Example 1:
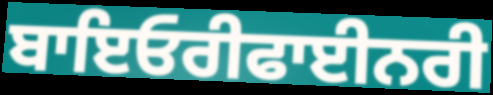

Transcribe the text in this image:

ਬਾਇਓਰੀਫਾਈਨਰੀ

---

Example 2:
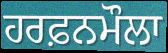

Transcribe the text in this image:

ਹਰਫ਼ਨਮੌਲਾ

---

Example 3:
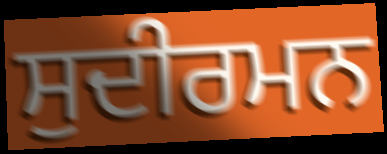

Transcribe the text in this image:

ਸੁਦੀਰਮਨ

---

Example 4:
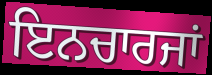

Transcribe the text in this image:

ਇਨਚਾਰਜਾਂ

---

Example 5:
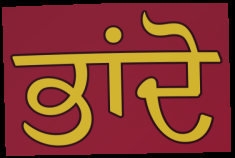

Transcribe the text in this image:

ਭਾਂਦੋ